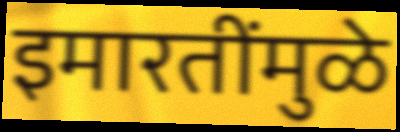
इमारतींमुळे